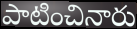
పాటించినారు